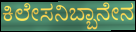
ಕಿಲೇಸನಿಬ್ಬಾನೇನ